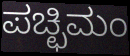
ಪಚ್ಛಿಮಂ